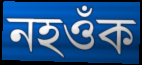
নহওঁক